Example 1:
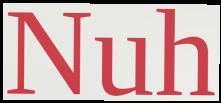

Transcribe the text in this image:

Nuh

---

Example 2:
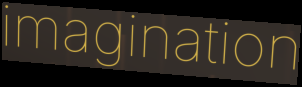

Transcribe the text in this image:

imagination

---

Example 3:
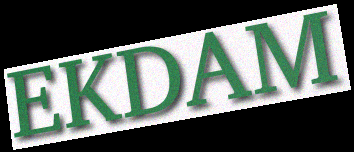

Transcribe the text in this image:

EKDAM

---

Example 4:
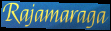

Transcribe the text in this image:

Rajamaraga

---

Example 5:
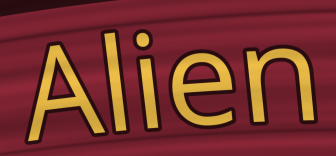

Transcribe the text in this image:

Alien